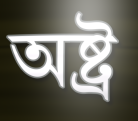
অষ্ট্ৰ